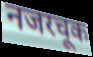
नजरचूक